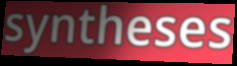
syntheses